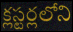
క్లస్టర్లలోని